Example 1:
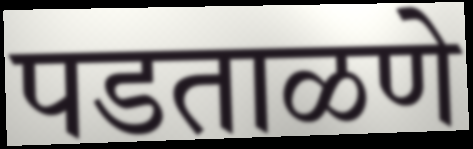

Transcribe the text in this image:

पडताळणे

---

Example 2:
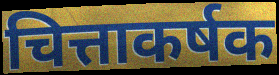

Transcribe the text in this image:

चित्ताकर्षक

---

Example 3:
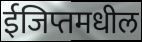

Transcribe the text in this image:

ईजिप्तमधील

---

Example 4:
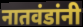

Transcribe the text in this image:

नातवंडांनी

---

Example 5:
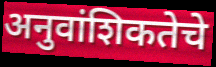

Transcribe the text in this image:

अनुवांशिकतेचे